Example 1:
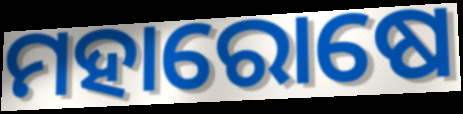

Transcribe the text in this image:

ମହାରୋଷେ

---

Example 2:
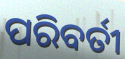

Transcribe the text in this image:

ପରିବର୍ତୀ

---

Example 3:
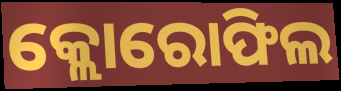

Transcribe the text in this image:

କ୍ଲୋରୋଫିଲ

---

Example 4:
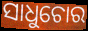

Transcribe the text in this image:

ସାଧୁଚୋର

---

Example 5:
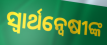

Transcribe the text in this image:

ସ୍ୱାର୍ଥନ୍ୱେଷୀଙ୍କ